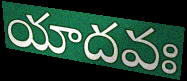
యాదవః